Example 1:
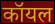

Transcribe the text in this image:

कॉयल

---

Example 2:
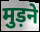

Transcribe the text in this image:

मुड़ने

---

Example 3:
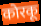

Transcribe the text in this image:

कोरकू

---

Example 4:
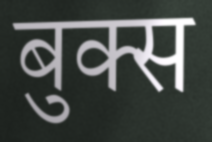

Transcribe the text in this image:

बुक्स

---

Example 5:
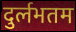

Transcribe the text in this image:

दुर्लभतम